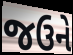
જઉને